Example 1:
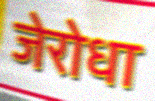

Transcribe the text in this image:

जेरोधा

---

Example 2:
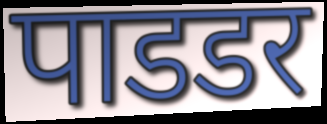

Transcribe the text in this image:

पाडडर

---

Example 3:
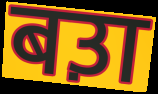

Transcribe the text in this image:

बउ़ा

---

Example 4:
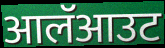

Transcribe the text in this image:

आलॅआउट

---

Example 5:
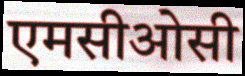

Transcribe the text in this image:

एमसीओसी